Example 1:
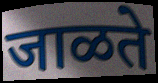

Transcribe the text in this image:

जाळते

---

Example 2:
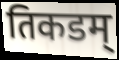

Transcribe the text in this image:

तिकडम्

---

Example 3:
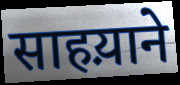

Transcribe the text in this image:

साहय़ाने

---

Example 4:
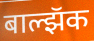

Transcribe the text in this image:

बाल्झॅक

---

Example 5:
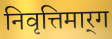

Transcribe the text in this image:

निवृत्तिमार्ग